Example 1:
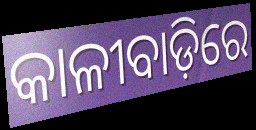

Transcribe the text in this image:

କାଳୀବାଡ଼ିରେ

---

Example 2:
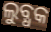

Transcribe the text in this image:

ଲୁବ୍ଧକ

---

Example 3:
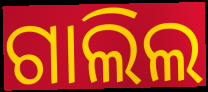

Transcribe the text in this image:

ଗାଲିଲ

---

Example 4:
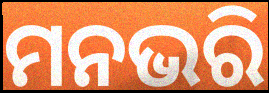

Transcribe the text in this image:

ମନଭରି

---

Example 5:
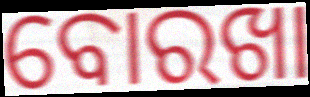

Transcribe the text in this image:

ବୋରଖା